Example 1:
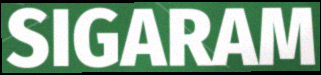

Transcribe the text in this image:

SIGARAM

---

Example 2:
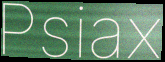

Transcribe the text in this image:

Psiax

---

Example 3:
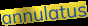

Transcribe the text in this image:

annulatus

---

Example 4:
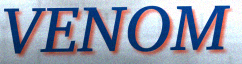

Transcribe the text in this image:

VENOM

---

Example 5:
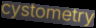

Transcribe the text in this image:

cystometry